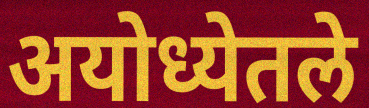
अयोध्येतले